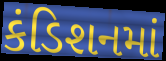
કંડિશનમાં